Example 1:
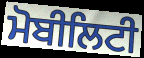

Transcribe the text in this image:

ਮੋਬੀਲਿਟੀ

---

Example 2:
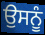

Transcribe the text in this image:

ਉਸਨੂੰ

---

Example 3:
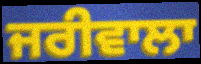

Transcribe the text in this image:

ਜਰੀਵਾਲਾ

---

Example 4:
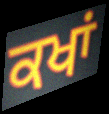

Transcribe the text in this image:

ਕਖਾਂ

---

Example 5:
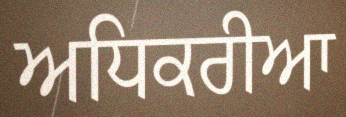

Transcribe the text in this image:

ਅਧਿਕਰੀਆ